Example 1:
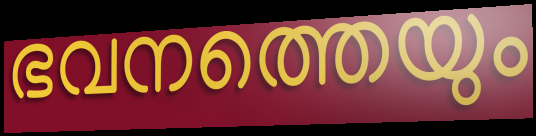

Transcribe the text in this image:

ഭവനത്തെയും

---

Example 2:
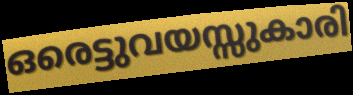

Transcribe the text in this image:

ഒരെട്ടുവയസ്സുകാരി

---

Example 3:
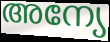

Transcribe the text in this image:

അന്യേ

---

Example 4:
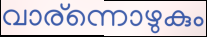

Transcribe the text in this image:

വാര്ന്നൊഴുകും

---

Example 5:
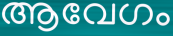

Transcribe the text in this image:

ആവേഗം